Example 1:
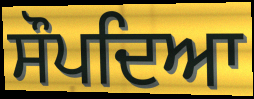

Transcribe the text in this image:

ਸੌਪਦਿਆ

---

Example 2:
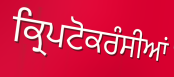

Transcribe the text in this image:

ਕ੍ਰਿਪਟੋਕਰੰਸੀਆਂ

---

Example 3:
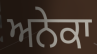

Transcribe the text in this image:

ਅਨੇਕਾ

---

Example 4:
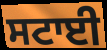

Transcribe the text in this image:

ਸਟਾਈ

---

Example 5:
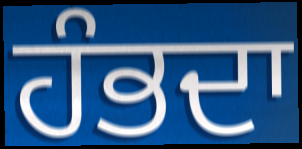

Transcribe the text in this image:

ਹੰਭਦਾ